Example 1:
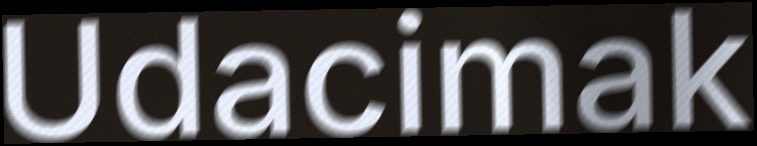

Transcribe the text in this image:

Udacimak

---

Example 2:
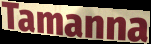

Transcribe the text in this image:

Tamanna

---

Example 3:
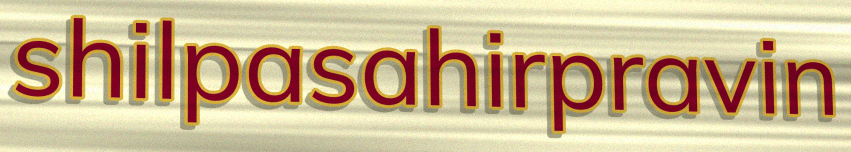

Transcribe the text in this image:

shilpasahirpravin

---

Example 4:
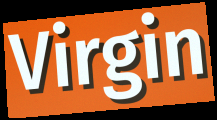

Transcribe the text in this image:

Virgin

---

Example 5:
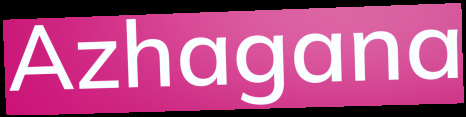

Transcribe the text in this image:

Azhagana